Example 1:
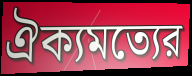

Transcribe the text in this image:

ঐক্যমত্যের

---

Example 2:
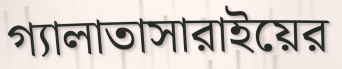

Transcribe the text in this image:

গ্যালাতাসারাইয়ের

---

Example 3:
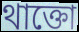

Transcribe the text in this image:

থাক্তো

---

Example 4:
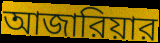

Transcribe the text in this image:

আজারিয়ার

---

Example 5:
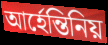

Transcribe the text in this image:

আর্হেন্তিনিয়